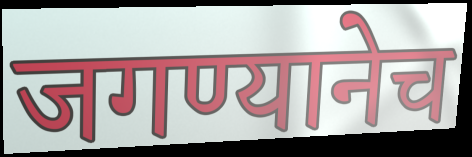
जगण्यानेच